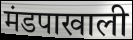
मंडपाखाली